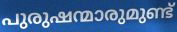
പുരുഷന്മാരുമുണ്ട്